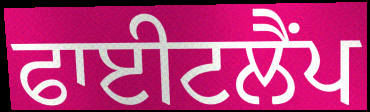
ਫਾਈਟਲੈਂਪ